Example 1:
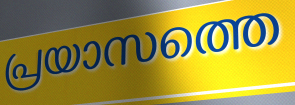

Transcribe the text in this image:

പ്രയാസത്തെ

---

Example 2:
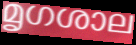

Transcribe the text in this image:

മൃഗശാല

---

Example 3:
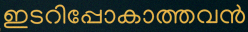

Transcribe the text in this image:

ഇടറിപ്പോകാത്തവൻ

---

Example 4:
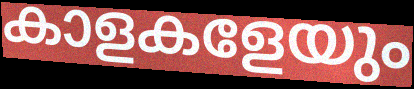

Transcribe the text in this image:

കാളകളേയും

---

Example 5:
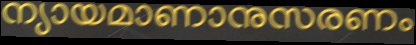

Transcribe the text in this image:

ന്യായമാണാനുസരണം